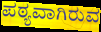
ಪಠ್ಯವಾಗಿರುವ